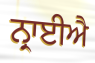
ਨ੍ਰਾਈਐ